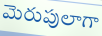
మెరుపులాగా